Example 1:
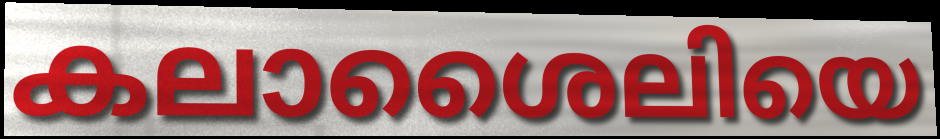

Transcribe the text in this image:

കലാശൈലിയെ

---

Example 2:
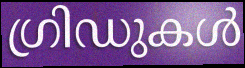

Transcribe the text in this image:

ഗ്രിഡുകൾ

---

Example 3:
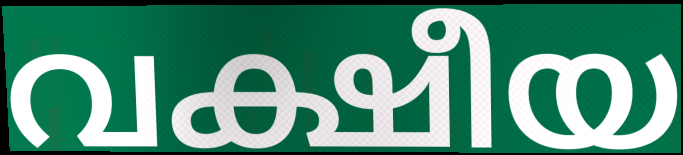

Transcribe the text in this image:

വക്ഷീയ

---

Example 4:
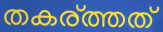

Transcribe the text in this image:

തകര്ത്തത്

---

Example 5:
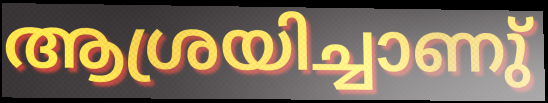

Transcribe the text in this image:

ആശ്രയിച്ചാണു്